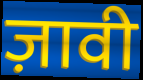
ज़ावी